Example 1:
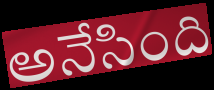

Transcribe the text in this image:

అనేసింది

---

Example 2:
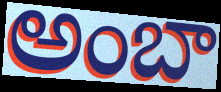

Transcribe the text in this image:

అంబా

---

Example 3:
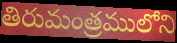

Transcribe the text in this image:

తిరుమంత్రములోని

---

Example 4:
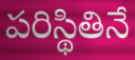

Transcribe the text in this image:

పరిస్థితినే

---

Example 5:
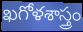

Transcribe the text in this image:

ఖగోళశాస్త్రం